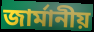
জাৰ্মানীয়